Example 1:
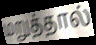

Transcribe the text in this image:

மறுத்தால்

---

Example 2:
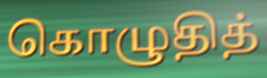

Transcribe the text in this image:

கொழுதித்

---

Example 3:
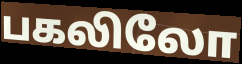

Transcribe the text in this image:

பகலிலோ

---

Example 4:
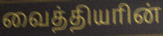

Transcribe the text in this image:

வைத்தியரின்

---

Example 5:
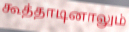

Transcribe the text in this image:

கூத்தாடினாலும்